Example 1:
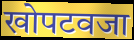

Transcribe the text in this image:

खोपटवजा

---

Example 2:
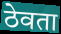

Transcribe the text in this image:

ठेवता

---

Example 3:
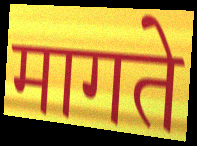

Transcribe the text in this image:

मागते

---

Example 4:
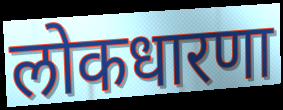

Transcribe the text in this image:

लोकधारणा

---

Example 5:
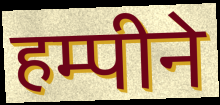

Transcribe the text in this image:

हम्पीने